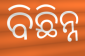
ବିଛିନ୍ନ